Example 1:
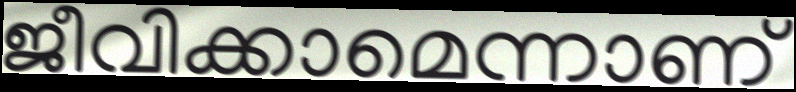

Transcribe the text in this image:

ജീവിക്കാമെന്നാണ്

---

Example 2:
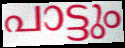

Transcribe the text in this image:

പാട്ടും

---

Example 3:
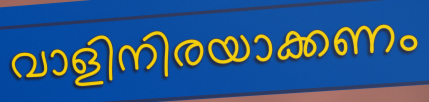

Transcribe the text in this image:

വാളിനിരയാക്കണം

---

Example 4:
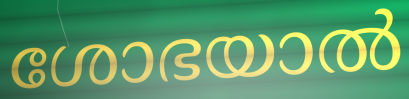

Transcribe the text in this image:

ശോഭയാൽ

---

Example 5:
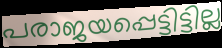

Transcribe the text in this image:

പരാജയപ്പെട്ടിട്ടില്ല